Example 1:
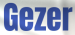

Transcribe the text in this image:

Gezer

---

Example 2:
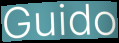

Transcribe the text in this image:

Guido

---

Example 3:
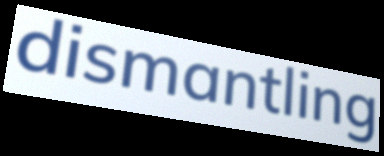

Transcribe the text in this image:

dismantling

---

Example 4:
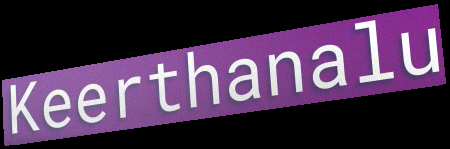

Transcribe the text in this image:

Keerthanalu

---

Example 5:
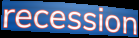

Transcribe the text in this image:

recession